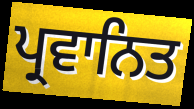
ਪ੍ਰਵਾਨਿਤ